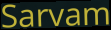
Sarvam